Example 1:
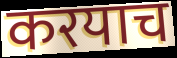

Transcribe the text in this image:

करयाच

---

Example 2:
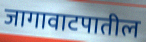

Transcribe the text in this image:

जागावाटपातील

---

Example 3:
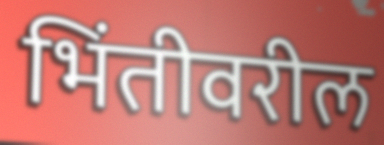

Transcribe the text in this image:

भिंतीवरील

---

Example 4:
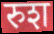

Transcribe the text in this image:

रुश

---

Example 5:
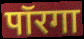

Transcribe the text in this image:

पॉरगा